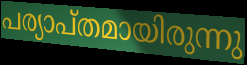
പര്യാപ്തമായിരുന്നു